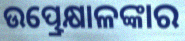
ଉତ୍ପ୍ରେକ୍ଷାଳଙ୍କାର